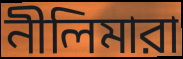
নীলিমারা